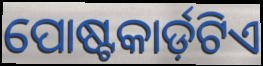
ପୋଷ୍ଟକାର୍ଡ଼ଟିଏ